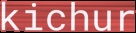
kichur